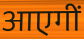
आएगीं